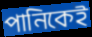
পানিকেই